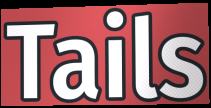
Tails